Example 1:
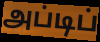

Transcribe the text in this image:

அப்டிப்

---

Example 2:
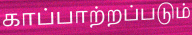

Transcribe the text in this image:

காப்பாற்றப்படும்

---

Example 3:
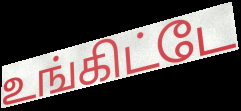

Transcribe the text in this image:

உங்கிட்டே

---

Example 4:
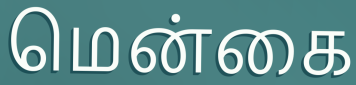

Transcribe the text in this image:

மென்கை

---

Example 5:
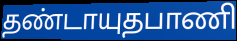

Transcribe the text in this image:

தண்டாயுதபாணி